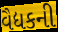
વૈદ્યકની